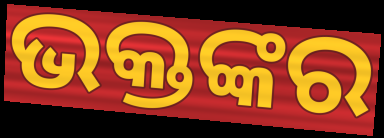
ଭକ୍ତଙ୍କର